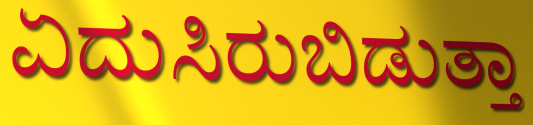
ಏದುಸಿರುಬಿಡುತ್ತಾ